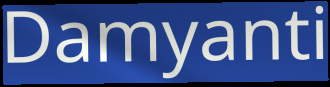
Damyanti